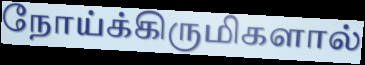
நோய்க்கிருமிகளால்